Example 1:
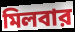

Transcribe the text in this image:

মিলবার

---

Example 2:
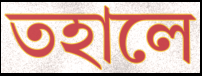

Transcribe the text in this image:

তহালে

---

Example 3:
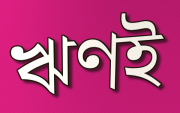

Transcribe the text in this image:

ঋণই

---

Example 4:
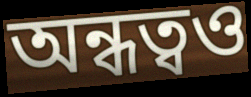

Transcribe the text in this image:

অন্ধত্বও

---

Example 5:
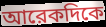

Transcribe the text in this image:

আরেকদিকে